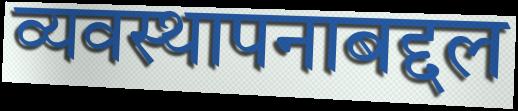
व्यवस्थापनाबद्दल